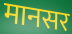
मानसर